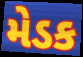
મેડક